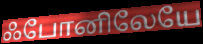
ஃபோனிலேயே